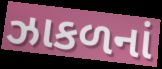
ઝાકળનાં